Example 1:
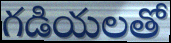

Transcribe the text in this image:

గడియలతో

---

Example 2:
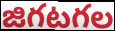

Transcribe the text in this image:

జిగటగల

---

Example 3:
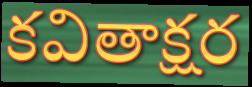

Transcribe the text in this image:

కవితాక్షర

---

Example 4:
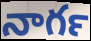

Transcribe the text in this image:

నాగర్‍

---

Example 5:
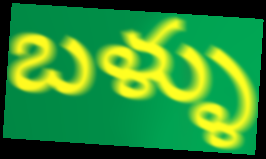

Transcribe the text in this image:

బళ్ళు